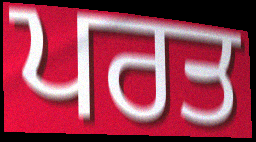
ਪਰਤ